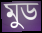
মুড